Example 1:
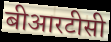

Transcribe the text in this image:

बीआरटीसी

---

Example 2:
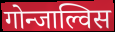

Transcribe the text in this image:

गोन्जाल्विस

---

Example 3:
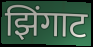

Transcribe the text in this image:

झिंगाट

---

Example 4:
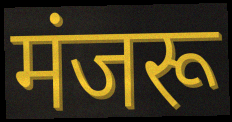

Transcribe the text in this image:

मंजरू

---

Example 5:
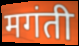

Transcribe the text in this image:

मगंती